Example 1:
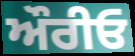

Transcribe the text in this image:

ਔਰੀਓ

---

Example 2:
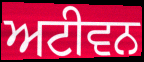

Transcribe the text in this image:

ਅਟੀਵਨ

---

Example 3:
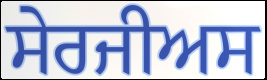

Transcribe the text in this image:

ਸੇਰਜੀਅਸ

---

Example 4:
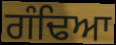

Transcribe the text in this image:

ਗੰਢਿਆ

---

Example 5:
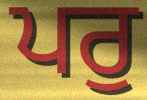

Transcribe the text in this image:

ਪਰੁ